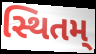
સ્થિતમ્